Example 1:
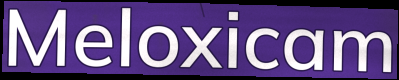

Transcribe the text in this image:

Meloxicam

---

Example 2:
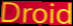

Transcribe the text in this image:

Droid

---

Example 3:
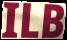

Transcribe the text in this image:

ILB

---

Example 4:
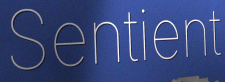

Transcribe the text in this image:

Sentient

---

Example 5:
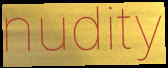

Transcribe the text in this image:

nudity